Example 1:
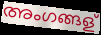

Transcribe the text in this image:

അംഗങ്ങള്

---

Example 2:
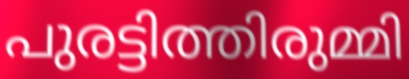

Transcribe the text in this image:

പുരട്ടിത്തിരുമ്മി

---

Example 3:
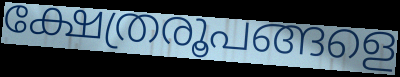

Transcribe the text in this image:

ക്ഷേത്രരൂപങ്ങളെ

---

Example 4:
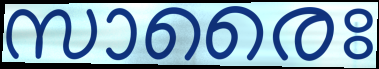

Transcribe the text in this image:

സാരൈഃ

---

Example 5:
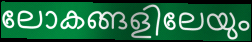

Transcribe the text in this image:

ലോകങ്ങളിലേയും